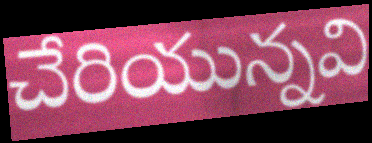
చేరియున్నవి